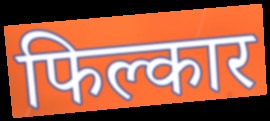
फिल्कार